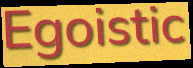
Egoistic